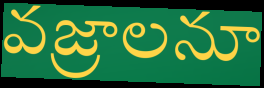
వజ్రాలనూ